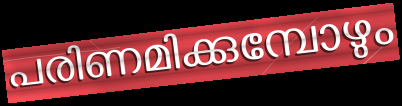
പരിണമിക്കുമ്പോഴും